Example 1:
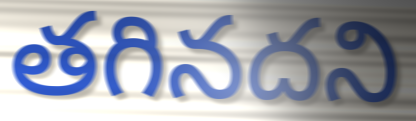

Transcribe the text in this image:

తగినదని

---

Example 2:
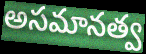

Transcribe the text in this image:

అసమానత్వ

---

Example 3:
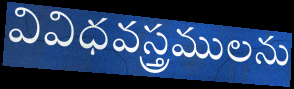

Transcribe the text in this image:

వివిధవస్త్రములను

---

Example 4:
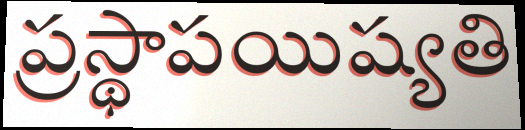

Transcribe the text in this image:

ప్రస్థాపయిష్యతి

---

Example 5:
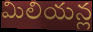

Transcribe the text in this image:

మిలియన్ల